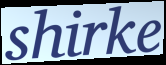
shirke